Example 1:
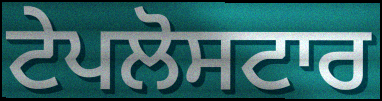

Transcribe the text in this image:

ਟੇਪਲੋਸਟਾਰ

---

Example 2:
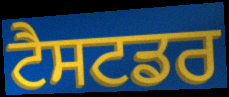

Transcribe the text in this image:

ਟੈਸਟਡਰ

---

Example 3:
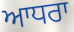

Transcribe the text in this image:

ਆਧਰਾ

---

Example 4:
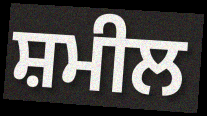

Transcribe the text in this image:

ਸ਼ਮੀਲ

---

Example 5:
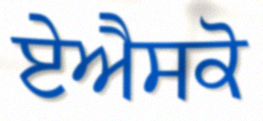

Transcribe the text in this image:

ਏਐਸਕੋ